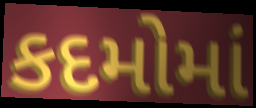
કદમોમાં